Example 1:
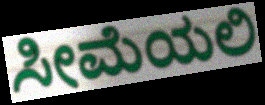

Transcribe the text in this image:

ಸೀಮೆಯಲಿ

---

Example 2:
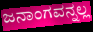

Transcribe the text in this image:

ಜನಾಂಗವನ್ನಲ್ಲ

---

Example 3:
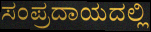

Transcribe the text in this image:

ಸಂಪ್ರದಾಯದಲ್ಲಿ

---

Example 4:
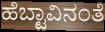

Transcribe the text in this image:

ಹೆಬ್ಟಾವಿನಂತೆ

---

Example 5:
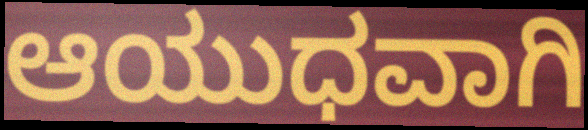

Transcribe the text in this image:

ಆಯುಧವಾಗಿ